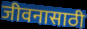
जीवनासाठी